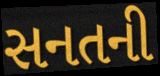
સનતની